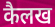
कैलख